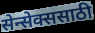
सेन्सेक्ससाठी